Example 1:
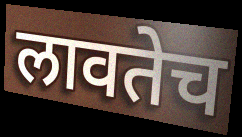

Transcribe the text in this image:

लावतेच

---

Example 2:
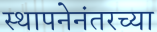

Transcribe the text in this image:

स्थापनेनंतरच्या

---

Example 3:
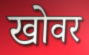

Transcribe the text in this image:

खोवर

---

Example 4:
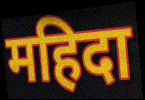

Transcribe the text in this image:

महिदा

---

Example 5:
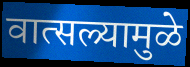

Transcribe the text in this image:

वात्सल्यामुळे